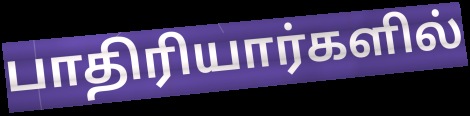
பாதிரியார்களில்